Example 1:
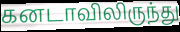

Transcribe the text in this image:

கனடாவிலிருந்து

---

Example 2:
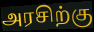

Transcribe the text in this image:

அரசிற்கு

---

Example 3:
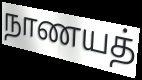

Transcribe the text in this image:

நாணயத்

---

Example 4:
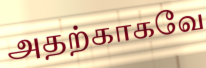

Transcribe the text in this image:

அதற்காகவே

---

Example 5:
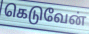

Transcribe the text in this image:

கெடுவேன்